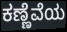
ಕಣ್ಣೆವೆಯ